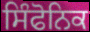
ਸਿੰਫੋਨਿਕ